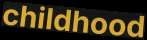
childhood